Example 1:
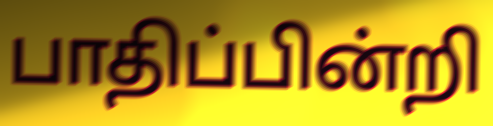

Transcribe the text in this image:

பாதிப்பின்றி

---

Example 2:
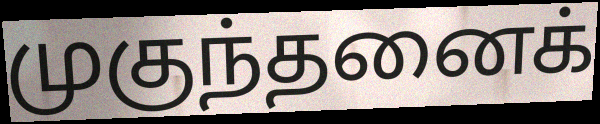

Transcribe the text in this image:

முகுந்தனைக்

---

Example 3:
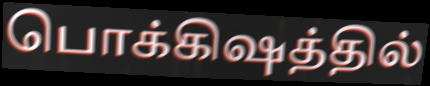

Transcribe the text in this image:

பொக்கிஷத்தில்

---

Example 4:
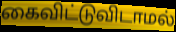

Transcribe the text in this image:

கைவிட்டுவிடாமல்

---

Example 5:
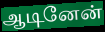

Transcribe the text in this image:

ஆடினேன்